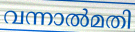
വന്നാൽമതി